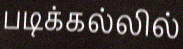
படிக்கல்லில்